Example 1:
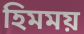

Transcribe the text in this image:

হিমময়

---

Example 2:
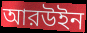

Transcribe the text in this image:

আরউইন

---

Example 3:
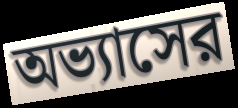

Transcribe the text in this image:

অভ্যাসের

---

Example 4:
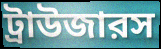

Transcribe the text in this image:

ট্রাউজারস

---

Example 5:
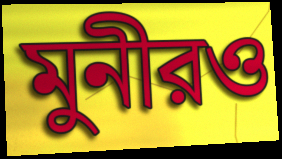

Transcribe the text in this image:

মুনীরও